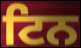
ਟਿਨ